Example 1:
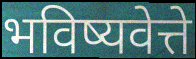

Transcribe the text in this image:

भविष्यवेत्ते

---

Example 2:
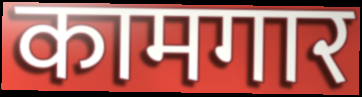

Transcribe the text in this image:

कामगार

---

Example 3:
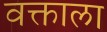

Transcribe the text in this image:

वक्ताला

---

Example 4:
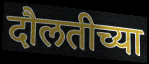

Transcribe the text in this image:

दौलतीच्या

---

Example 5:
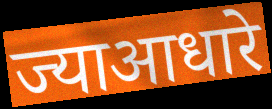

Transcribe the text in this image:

ज्याआधारे